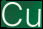
Cu